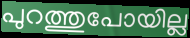
പുറത്തുപോയില്ല